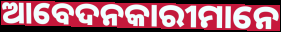
ଆବେଦନକାରୀମାନେ